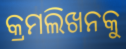
କ୍ରମଲିଖନକୁ